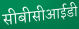
सीबीसीआईडी